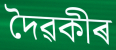
দৈৱকীৰ